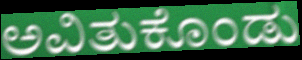
ಅವಿತುಕೊಂಡು